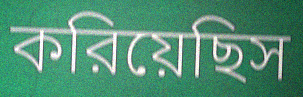
করিয়েছিস